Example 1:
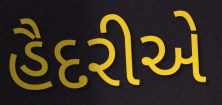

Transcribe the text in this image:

હૈદરીએ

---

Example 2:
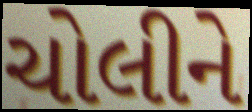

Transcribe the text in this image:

ચોલીને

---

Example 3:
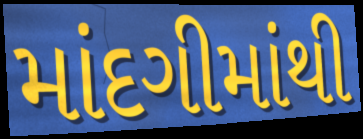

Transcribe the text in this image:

માંદગીમાંથી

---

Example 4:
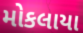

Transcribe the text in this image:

મોકલાયા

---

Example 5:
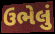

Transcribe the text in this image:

ઉભેલું